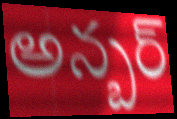
అన్బర్